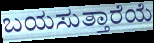
ಬಯಸುತ್ತಾರೆಯೆ